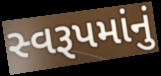
સ્વરૂપમાંનું